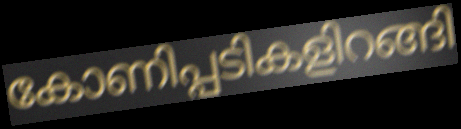
കോണിപ്പടികളിറങ്ങി